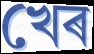
খেৰ